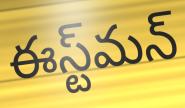
ఈస్ట్‌మన్